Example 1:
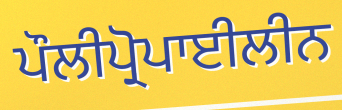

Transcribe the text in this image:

ਪੌਲੀਪ੍ਰੋਪਾਈਲੀਨ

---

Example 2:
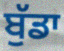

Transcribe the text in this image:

ਬੁੱਡਾ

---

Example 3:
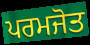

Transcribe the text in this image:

ਪਰਮਜੋਤ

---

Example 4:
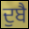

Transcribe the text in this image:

ਦੁਬੈ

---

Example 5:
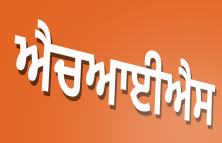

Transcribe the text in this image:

ਐਚਆਈਐਸ